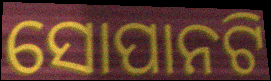
ସୋପାନଟି